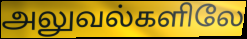
அலுவல்களிலே